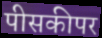
पीसकीपर